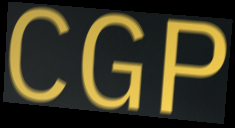
CGP